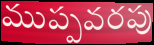
ముప్పవరపు